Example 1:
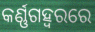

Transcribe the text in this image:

କର୍ଣ୍ଣଗହ୍ଵରରେ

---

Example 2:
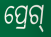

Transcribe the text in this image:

ପ୍ରେଗ୍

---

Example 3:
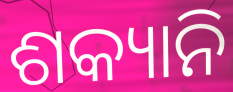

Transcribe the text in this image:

ଶକ୍ୟାନି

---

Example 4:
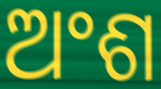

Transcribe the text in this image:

ଅଂଶ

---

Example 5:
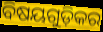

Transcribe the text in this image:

ବିଷୟଗୁଡ଼ିକର